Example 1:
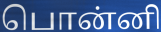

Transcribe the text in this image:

பொன்னி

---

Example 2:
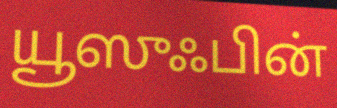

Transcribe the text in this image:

யூஸுஃபின்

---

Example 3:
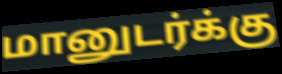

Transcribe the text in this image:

மானுடர்க்கு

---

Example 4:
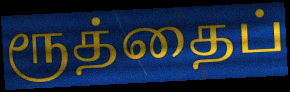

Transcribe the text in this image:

ரூத்தைப்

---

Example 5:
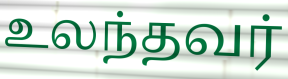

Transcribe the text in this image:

உலந்தவர்